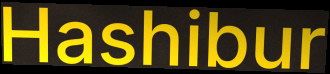
Hashibur